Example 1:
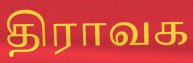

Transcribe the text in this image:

திராவக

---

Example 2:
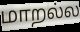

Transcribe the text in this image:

மாறல்ல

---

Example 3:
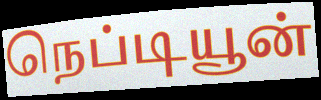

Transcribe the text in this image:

நெப்டியூன்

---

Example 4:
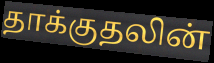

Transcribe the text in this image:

தாக்குதலின்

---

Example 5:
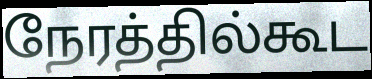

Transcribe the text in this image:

நேரத்தில்கூட